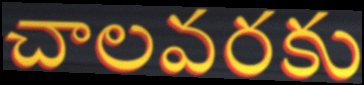
చాలవరకు